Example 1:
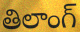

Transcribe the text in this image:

తిలాంగ్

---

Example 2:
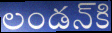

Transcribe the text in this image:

లండన్‌కి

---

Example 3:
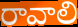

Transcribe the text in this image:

రావాలి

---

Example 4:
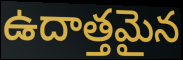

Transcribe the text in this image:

ఉదాత్తమైన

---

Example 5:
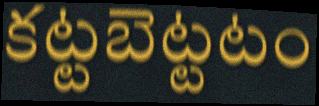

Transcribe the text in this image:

కట్టబెట్టటం